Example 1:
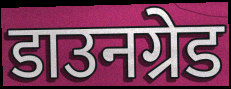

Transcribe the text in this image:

डाउनग्रेड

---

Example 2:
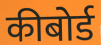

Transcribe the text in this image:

कीबोर्ड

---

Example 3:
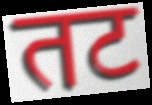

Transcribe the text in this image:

तट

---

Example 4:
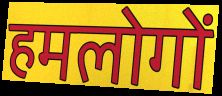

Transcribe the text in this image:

हमलोगों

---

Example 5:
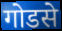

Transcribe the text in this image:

गोडसे